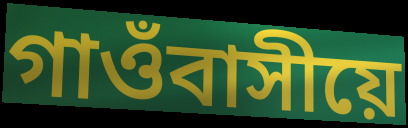
গাওঁবাসীয়ে